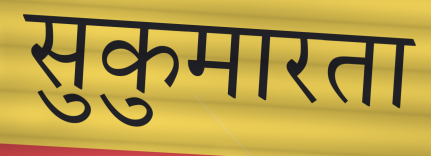
सुकुमारता